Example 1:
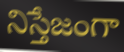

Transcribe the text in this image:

నిస్తేజంగా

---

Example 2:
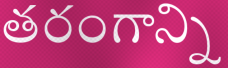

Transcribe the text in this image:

తరంగాన్ని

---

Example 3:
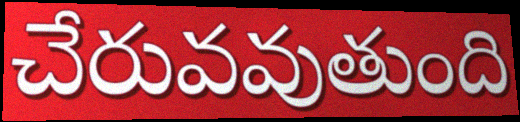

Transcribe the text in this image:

చేరువవుతుంది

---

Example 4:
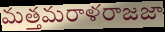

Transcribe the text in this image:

మత్తమరాళరాజజా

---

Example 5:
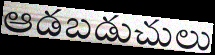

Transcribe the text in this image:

ఆడబడుచులు